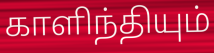
காளிந்தியும்